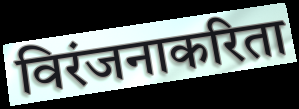
विरंजनाकरिता